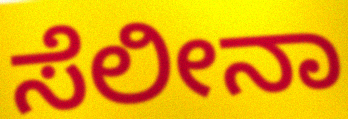
ಸೆಲೀನಾ